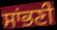
ਸਾਂਭਣੀ